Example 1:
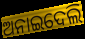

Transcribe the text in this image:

ଅନାଇଦେଲି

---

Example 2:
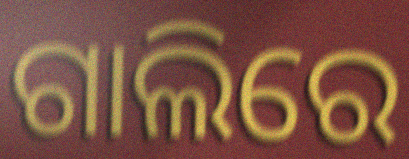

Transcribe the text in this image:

ଗାଲିରେ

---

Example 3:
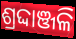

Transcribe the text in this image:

ଶ୍ରଦ୍ଦାଞ୍ଜଳି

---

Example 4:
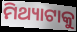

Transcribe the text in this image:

ମିଥ୍ୟାଟାକୁ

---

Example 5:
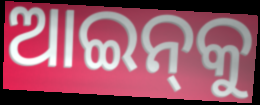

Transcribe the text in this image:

ଆଇନ୍‍କୁ